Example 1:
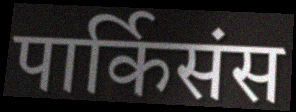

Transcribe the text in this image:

पार्किसंस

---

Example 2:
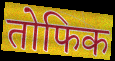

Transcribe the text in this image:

तोफिक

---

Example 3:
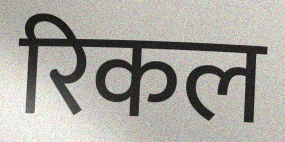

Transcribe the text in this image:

रिकल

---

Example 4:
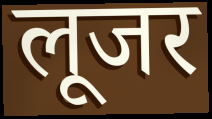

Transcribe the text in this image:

लूजर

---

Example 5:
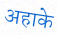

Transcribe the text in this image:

अहाके